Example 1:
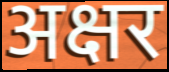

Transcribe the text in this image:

अक्षर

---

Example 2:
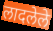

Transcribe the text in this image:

लादलेले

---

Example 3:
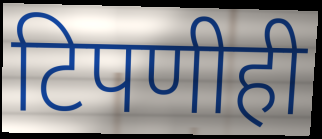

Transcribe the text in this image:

टिपणीही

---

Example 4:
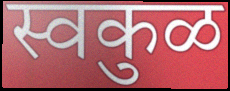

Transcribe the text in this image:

स्वकुळ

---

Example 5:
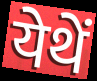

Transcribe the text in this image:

येथें